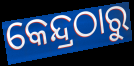
କେନ୍ଦ୍ରଠାରୁ